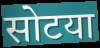
सोटया